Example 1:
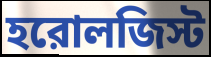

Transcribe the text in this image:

হরোলজিস্ট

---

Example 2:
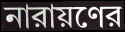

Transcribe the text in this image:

নারায়ণের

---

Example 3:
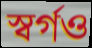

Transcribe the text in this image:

স্বর্গও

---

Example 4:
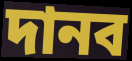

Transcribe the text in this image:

দানব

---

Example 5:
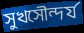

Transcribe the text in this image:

সুখসৌন্দর্য